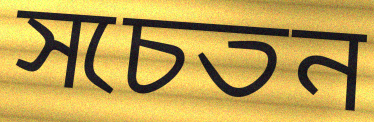
সচেতন